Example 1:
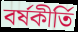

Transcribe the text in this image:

বর্ষকীর্তি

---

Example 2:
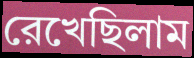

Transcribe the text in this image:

রেখেছিলাম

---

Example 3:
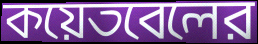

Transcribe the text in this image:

কয়েতবেলের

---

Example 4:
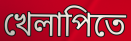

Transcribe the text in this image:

খেলাপিতে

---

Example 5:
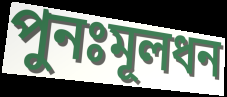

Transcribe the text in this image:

পুনঃমূলধন